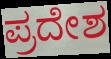
ಪ್ರದೇಶ